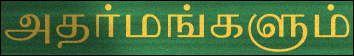
அதர்மங்களும்